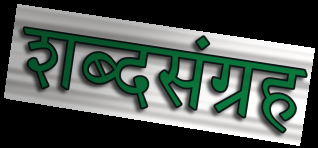
शब्दसंग्रह